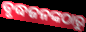
ବୃଦ୍ଧଜନଙ୍କଠାରୁ